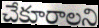
చేకూరాలని